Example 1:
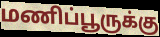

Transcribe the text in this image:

மணிப்பூருக்கு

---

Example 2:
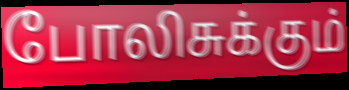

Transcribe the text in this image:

போலிசுக்கும்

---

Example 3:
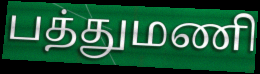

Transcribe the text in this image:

பத்துமணி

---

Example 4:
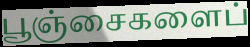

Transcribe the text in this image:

பூஞ்சைகளைப்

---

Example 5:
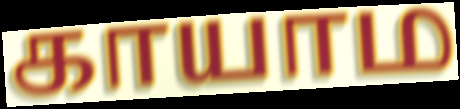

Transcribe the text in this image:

காயாம